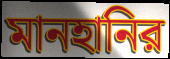
মানহানির